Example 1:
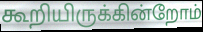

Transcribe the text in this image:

கூறியிருக்கின்றோம்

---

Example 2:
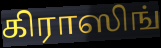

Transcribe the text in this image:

கிராஸிங்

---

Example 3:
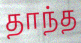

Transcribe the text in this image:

தாந்த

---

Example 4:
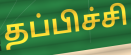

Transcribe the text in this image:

தப்பிச்சி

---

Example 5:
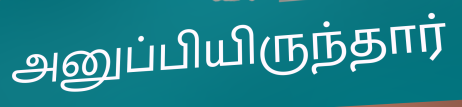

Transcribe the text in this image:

அனுப்பியிருந்தார்